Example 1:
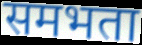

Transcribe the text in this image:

समभता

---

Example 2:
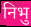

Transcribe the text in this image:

निभु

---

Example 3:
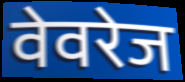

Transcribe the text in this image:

वेवरेज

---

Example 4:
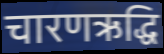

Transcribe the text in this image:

चारणऋद्धि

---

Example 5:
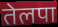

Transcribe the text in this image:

तेलपा